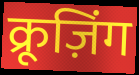
क्रूज़िंग